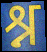
श्न